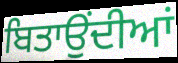
ਬਿਤਾਉਂਦੀਆਂ